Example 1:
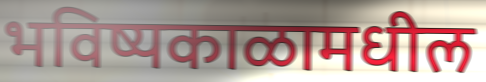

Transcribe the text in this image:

भविष्यकाळामधील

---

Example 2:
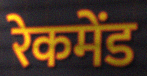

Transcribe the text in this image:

रेकमेंड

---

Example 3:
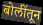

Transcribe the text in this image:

बोलींतून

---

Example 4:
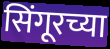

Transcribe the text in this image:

सिंगूरच्या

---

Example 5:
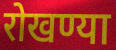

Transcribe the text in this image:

रोखण्या